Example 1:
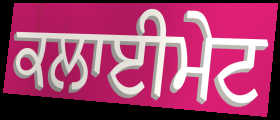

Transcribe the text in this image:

ਕਲਾਈਮੇਟ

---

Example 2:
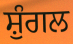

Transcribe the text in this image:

ਸ਼ੁੰਗਲ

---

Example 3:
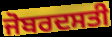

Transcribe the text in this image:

ਜੋਬਰਦਸਤੀ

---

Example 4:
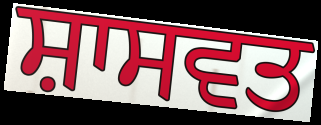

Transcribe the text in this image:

ਸ਼ਾਸਵਤ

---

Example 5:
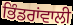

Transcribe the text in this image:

ਭਿੰਡਰਾਂਵਾਲੀ